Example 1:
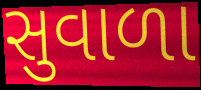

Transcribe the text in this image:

સુવાળા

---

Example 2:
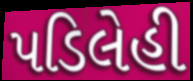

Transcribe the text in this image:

પડિલેહી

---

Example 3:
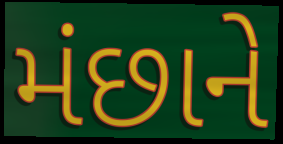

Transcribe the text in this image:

મંછાને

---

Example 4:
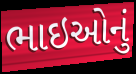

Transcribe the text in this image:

ભાઇઓનું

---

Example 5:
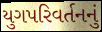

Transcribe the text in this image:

યુગપરિવર્તનનું